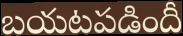
బయటపడిందీ